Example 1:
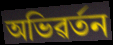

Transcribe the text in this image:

অভিৱৰ্তন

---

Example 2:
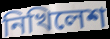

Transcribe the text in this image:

নিখিলেশ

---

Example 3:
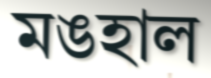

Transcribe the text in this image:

মঙহাল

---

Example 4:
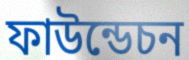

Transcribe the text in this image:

ফাউন্ডেচন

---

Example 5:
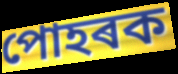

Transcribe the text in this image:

পোহৰক